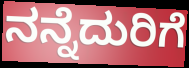
ನನ್ನೆದುರಿಗೆ